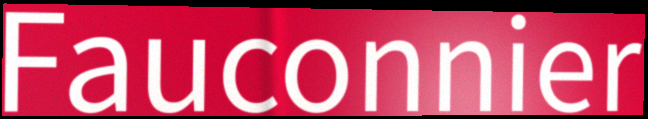
Fauconnier